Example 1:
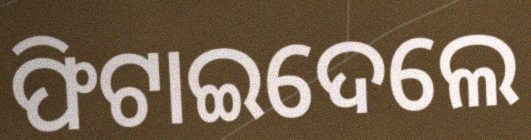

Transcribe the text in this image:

ଫିଟାଇଦେଲେ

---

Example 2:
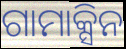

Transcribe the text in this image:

ଗାମାକ୍ସିନ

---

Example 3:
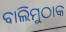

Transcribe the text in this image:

ବାଲିମୁଠାକ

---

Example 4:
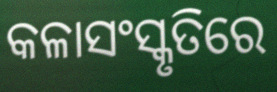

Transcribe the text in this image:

କଳାସଂସ୍କୃତିରେ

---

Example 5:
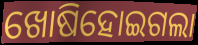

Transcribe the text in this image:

ଖୋଷିହୋଇଗଲା